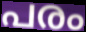
പരം